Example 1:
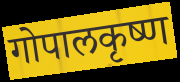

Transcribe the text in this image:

गोपालकृष्ण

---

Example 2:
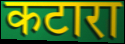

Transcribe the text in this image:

कटारा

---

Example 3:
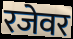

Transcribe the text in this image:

रजेवर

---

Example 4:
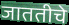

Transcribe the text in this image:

जाततीचे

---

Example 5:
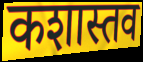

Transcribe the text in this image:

कशास्तव